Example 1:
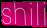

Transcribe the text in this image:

shili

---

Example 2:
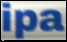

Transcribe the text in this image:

ipa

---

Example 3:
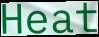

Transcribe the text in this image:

Heat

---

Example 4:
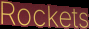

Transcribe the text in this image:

Rockets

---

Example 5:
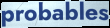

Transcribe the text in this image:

probables